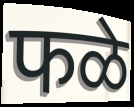
फळे